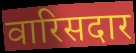
वारिसदार